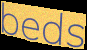
beds